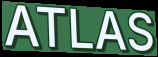
ATLAS